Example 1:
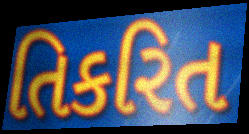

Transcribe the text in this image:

તિકરિત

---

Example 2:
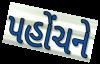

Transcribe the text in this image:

પહોંચને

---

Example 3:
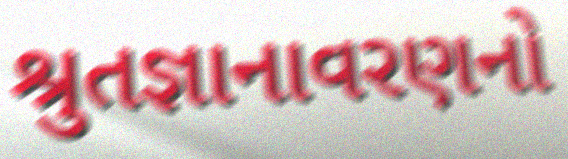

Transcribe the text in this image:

શ્રુતજ્ઞાનાવરણનો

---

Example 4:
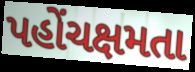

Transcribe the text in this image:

પહોંચક્ષમતા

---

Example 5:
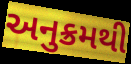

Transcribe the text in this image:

અનુક્રમથી